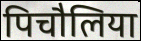
पिचौलिया